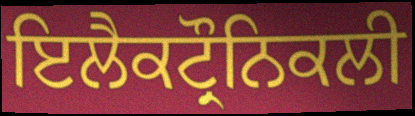
ਇਲੈਕਟ੍ਰੌਨਿਕਲੀ